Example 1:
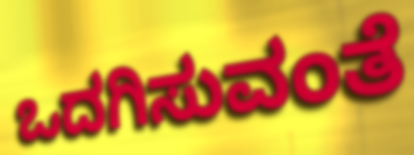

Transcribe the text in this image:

ಒದಗಿಸುವಂತೆ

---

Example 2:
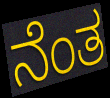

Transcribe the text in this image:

ನೆಂತ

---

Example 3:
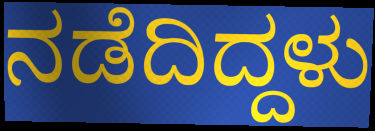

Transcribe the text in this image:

ನಡೆದಿದ್ದಳು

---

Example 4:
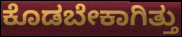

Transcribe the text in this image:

ಕೊಡಬೇಕಾಗಿತ್ತು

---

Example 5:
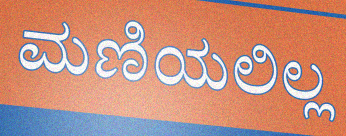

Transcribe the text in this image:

ಮಣಿಯಲಿಲ್ಲ